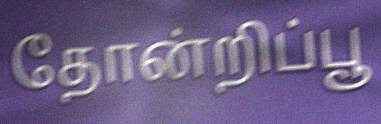
தோன்றிப்பூ